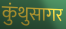
कुंथुसागर